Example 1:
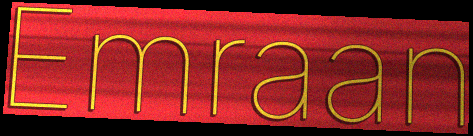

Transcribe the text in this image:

Emraan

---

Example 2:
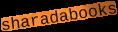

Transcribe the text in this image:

sharadabooks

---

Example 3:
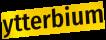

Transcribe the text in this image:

ytterbium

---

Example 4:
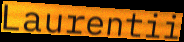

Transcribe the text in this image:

Laurentii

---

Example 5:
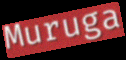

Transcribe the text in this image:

Muruga